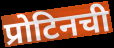
प्रोटिनची